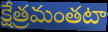
క్షేత్రమంతటా